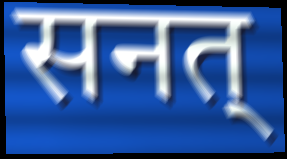
सनत्